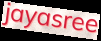
jayasree